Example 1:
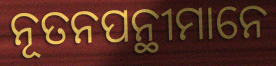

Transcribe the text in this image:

ନୂତନପନ୍ଥୀମାନେ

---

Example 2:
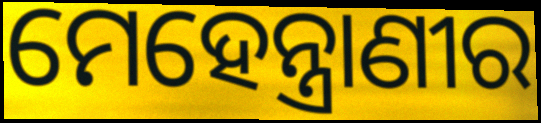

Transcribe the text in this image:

ମେହେନ୍ତ୍ରାଣୀର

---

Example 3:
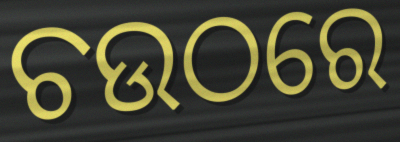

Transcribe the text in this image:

ଚଉଠରେ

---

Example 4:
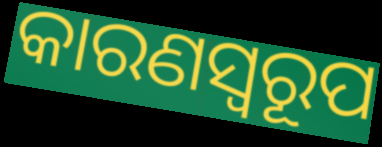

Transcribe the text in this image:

କାରଣସ୍ୱରୂପ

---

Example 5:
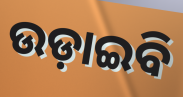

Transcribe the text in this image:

ଉଡ଼ାଇବି